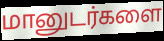
மானுடர்களை